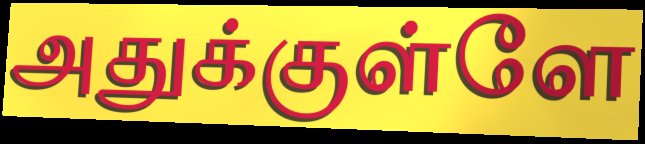
அதுக்குள்ளே